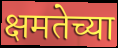
क्षमतेच्या